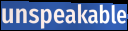
unspeakable